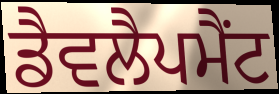
ਡੈਵਲੈਪਮੈਂਟ